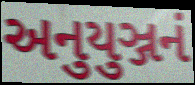
અનુયુઞ્જનં